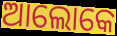
ଆଲୋକେ